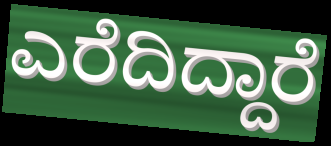
ಎರೆದಿದ್ದಾರೆ